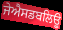
ਜੇਐਸਡਬਲਿਊ